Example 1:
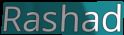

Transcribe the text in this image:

Rashad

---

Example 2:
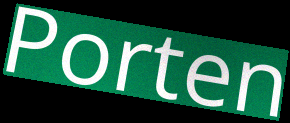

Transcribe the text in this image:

Porten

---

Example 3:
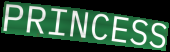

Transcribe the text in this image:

PRINCESS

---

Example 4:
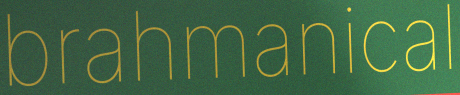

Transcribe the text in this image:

brahmanical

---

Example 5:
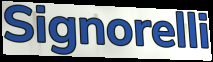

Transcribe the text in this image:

Signorelli